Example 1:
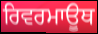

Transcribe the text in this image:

ਰਿਵਰਮਾਊਥ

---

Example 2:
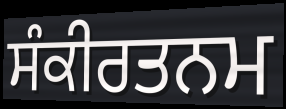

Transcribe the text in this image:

ਸੰਕੀਰਤਨਮ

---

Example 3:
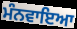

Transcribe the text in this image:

ਮੰਨਵਾਇਆ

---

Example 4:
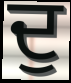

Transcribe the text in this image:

ਦੁ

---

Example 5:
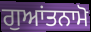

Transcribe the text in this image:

ਗੁਆਂਤਨਾਮੋ